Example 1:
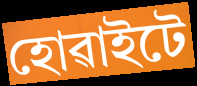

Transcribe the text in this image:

হোৱাইটে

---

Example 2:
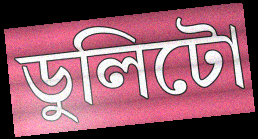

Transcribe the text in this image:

ডুলিটো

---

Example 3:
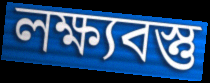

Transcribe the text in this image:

লক্ষ্যবস্তু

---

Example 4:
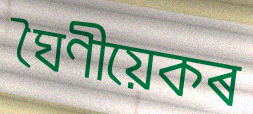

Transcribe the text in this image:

ঘৈণীয়েকৰ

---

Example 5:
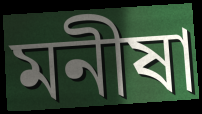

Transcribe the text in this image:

মনীষা